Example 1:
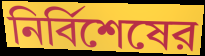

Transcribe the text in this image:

নির্বিশেষের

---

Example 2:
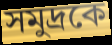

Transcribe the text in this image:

সমুদ্রকে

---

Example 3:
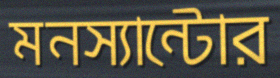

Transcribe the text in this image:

মনস্যান্টোর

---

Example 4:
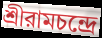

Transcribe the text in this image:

শ্রীরামচন্দ্রে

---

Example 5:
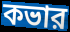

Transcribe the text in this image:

কভার